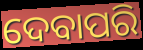
ଦେବାପରି